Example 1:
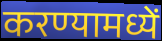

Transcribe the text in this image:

करण्यामध्यें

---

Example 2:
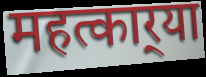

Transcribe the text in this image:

महत्कार्या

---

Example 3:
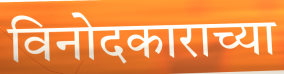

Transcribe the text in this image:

विनोदकाराच्या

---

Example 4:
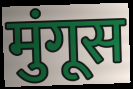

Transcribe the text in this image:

मुंगूस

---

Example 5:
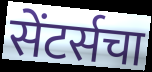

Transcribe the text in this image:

सेंटर्सचा